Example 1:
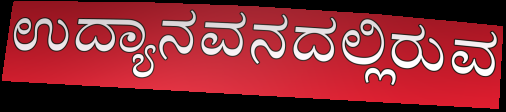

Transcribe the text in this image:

ಉದ್ಯಾನವನದಲ್ಲಿರುವ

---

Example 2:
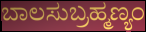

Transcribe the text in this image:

ಬಾಲಸುಬ್ರಹ್ಮಣ್ಯಂ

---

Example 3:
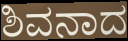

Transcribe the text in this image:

ಶಿವನಾದ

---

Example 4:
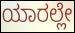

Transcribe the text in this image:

ಯಾರಲ್ಲೇ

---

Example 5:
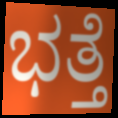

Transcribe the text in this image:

ಭತ್ತೆ